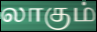
லாகும்